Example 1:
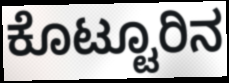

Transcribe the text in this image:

ಕೊಟ್ಟೂರಿನ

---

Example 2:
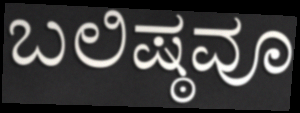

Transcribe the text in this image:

ಬಲಿಷ್ಠವೂ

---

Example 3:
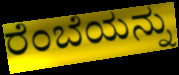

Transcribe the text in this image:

ರೆಂಬೆಯನ್ನು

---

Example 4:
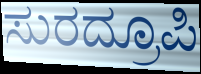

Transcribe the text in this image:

ಸುರದ್ರೂಪಿ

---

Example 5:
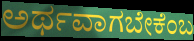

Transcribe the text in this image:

ಅರ್ಥವಾಗಬೇಕೆಂಬ